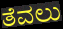
ತೆವಲು